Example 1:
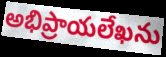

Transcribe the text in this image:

అభిప్రాయలేఖను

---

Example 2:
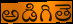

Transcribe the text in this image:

అడిగితె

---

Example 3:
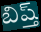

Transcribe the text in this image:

బిష్త్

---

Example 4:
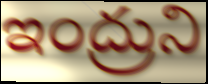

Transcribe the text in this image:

ఇంద్రుని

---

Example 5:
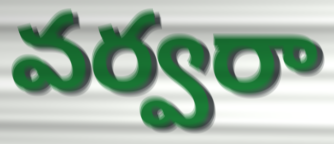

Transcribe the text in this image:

వర్వరా